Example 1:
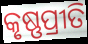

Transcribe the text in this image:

କୃଷ୍ଣପ୍ରୀତି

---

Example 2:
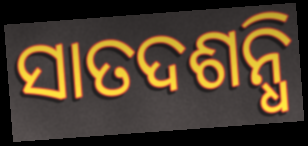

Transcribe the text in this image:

ସାତଦଶନ୍ଧି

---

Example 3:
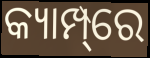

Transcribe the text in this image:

କ୍ୟାମ୍ପ୍‌ରେ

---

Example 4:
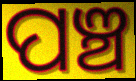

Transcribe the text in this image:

ପଞ୍ଚ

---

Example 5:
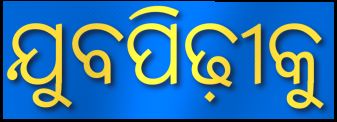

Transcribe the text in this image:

ଯୁବପିଢ଼ୀକୁ